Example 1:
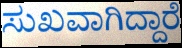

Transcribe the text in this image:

ಸುಖವಾಗಿದ್ದಾರೆ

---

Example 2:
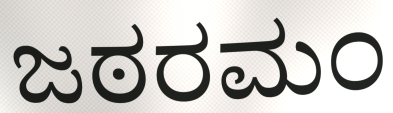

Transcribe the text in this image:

ಜಠರಮಂ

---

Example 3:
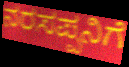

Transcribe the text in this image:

ನರಸಪ್ಪನಿಗೆ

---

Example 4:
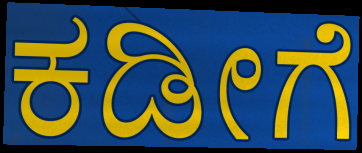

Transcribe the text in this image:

ಕಡೀಗೆ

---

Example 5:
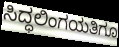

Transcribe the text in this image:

ಸಿದ್ಧಲಿಂಗಯತಿಗೂ